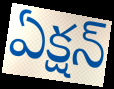
ఏక్షన్